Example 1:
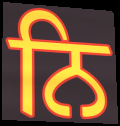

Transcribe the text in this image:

ਨਿ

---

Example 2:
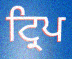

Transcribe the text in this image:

ਟ੍ਰਿਪ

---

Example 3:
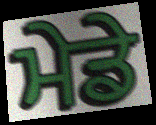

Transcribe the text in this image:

ਮੇਡੇ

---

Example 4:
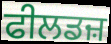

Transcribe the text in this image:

ਫੀਲਡਜ਼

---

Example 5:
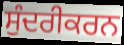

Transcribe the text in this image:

ਸੁੰਦਰੀਕਰਨ